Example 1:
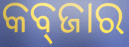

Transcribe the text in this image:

କବ୍‍ଜାର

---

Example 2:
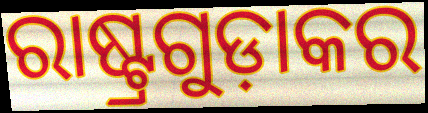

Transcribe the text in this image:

ରାଷ୍ଟ୍ରଗୁଡ଼ାକର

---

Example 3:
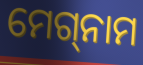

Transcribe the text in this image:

ମେଗ୍‌ନାମ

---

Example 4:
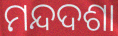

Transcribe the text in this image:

ମନ୍ଦଦଶା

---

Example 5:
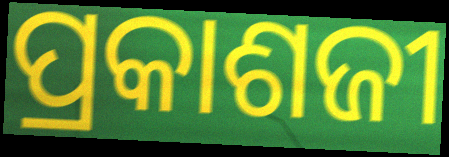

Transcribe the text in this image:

ପ୍ରକାଶଜୀ